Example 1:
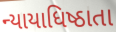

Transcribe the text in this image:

ન્યાયાધિષ્ઠાતા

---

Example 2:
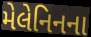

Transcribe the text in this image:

મેલેનિનના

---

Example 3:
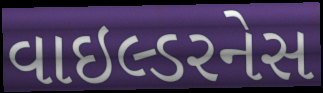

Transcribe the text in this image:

વાઇલ્ડરનેસ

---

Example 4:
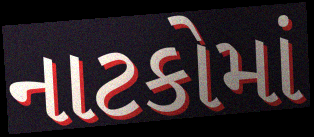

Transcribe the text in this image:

નાટકોમાં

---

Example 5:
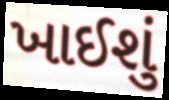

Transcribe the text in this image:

ખાઈશું